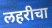
लहरीचा